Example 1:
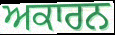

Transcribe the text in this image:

ਅਕਾਰਨ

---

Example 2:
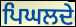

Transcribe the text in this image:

ਪਿਘਲਦੇ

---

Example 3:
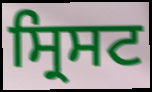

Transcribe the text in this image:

ਸ੍ਰਿਸਟ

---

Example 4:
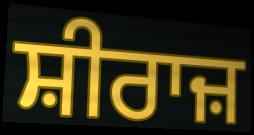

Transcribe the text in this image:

ਸ਼ੀਰਾਜ਼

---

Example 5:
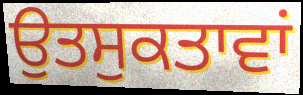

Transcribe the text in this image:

ਉਤਸੁਕਤਾਵਾਂ